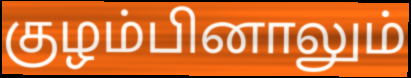
குழம்பினாலும்